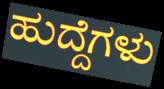
ಹುದ್ದೆಗಳು